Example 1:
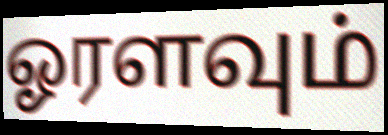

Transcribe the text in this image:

ஓரளவும்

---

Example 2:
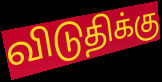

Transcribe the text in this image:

விடுதிக்கு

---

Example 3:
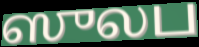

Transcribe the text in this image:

ஸுலப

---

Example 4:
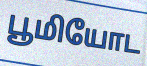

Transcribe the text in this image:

பூமியோட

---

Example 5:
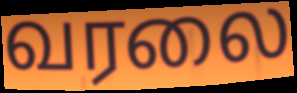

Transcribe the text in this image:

வரலை